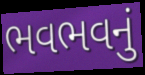
ભવભવનું